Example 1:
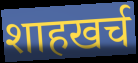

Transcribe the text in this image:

शाहखर्च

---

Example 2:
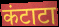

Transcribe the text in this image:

कंटाटा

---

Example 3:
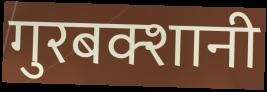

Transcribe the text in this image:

गुरबक्शानी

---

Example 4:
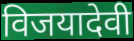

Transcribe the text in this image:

विजयादेवी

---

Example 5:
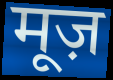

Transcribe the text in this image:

मूज़